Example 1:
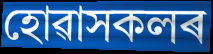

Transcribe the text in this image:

হোৱাসকলৰ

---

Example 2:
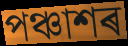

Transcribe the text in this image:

পঞ্চাশৰ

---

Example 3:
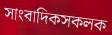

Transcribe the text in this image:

সাংবাদিকসকলক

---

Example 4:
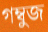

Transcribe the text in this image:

গম্বুজ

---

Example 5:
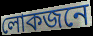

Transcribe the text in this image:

লোকজনে